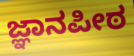
ಜ್ಞಾನಪೀಠ